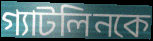
গ্যাটলিনকে